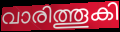
വാരിത്തൂകി